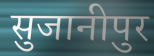
सुजानीपुर